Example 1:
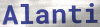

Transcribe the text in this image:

Alanti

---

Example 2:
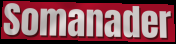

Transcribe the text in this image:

Somanader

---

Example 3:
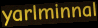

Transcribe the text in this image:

yarlminnal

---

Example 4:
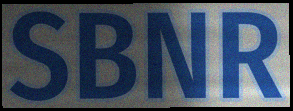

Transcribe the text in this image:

SBNR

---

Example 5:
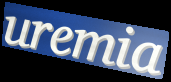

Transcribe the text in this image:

uremia